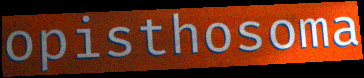
opisthosoma